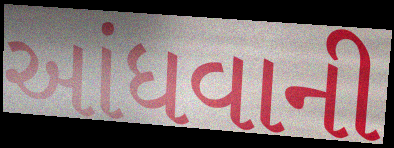
આંધવાની